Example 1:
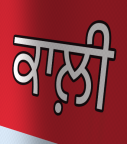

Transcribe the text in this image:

ਕਾਲ਼ੀ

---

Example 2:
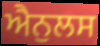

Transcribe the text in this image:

ਐਨੁਲਸ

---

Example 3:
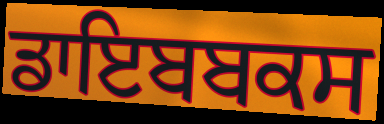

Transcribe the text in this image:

ਡਾਇਬਬਕਸ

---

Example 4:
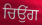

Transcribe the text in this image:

ਚਿਉਂਗ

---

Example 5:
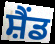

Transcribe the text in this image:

ਸ਼ੈਂਡ